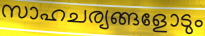
സാഹചര്യങ്ങളോടും